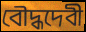
বৌদ্ধদেবী